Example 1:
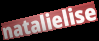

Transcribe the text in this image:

natalielise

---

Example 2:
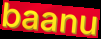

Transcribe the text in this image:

baanu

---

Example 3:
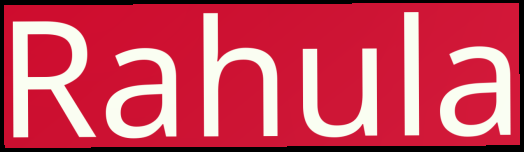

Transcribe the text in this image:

Rahula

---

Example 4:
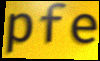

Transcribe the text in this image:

pfe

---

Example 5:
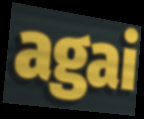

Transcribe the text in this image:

agai